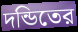
দন্ডিতের